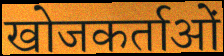
खोजकर्ताओं